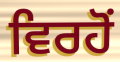
ਵਿਰਹੋਂ